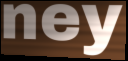
ney